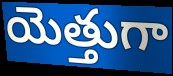
యెత్తుగా